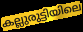
കല്ലുരുട്ടിയിലെ